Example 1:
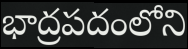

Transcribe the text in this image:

భాద్రపదంలోని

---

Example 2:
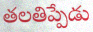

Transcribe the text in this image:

తలతిప్పేడు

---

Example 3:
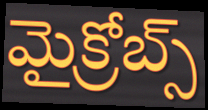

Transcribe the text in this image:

మైక్రోబ్స్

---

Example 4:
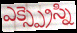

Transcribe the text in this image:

ఎక్స్ప్రెస్ని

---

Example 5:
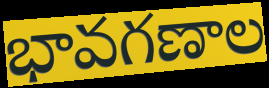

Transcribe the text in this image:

భావగణాల